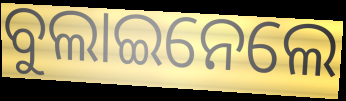
ବୁଲାଇନେଲେ